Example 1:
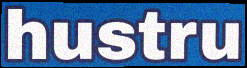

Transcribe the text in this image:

hustru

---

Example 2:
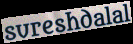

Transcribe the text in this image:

sureshdalal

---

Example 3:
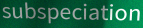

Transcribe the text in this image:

subspeciation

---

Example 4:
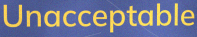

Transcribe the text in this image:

Unacceptable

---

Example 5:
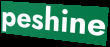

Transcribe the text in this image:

peshine